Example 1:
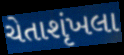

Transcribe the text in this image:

ચેતાશૃંખલા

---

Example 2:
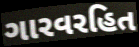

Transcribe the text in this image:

ગારવરહિત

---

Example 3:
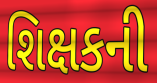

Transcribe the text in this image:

શિક્ષકની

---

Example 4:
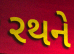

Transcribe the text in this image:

રથને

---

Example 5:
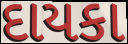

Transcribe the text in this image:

દાયકા